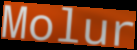
Molur